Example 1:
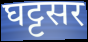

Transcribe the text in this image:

घट्टसर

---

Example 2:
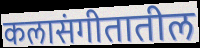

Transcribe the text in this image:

कलासंगीतातील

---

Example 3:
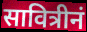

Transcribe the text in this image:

सावित्रीनं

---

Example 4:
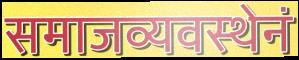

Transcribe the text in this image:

समाजव्यवस्थेनं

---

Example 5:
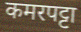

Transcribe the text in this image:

कमरपट्टा